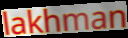
lakhman